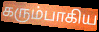
கரும்பாகிய